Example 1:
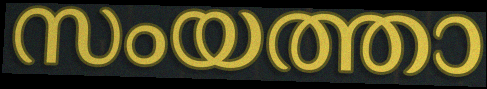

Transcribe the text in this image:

സംയത്താ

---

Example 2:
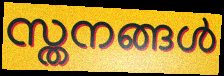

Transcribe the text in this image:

സ്തനങ്ങൾ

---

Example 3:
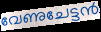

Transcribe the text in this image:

വേണുചേട്ടൻ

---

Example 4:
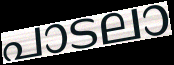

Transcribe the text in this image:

പാടലാ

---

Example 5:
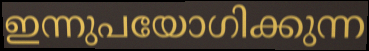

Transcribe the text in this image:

ഇന്നുപയോഗിക്കുന്ന